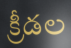
క్రీడల